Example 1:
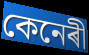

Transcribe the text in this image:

কেনেৰী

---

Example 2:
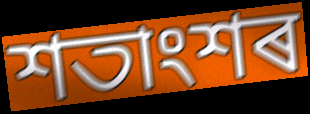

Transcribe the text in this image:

শতাংশৰ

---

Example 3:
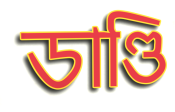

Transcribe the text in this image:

ডাণ্ডি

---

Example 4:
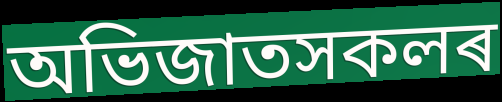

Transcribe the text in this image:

অভিজাতসকলৰ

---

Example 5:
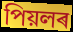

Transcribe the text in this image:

পিয়লৰ